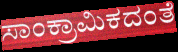
ಸಾಂಕ್ರಾಮಿಕದಂತೆ